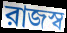
রাজস্ব